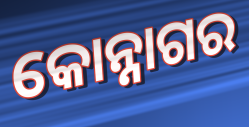
କୋନ୍ନାଗର